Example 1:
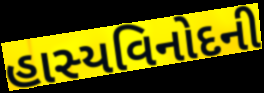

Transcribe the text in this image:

હાસ્યવિનોદની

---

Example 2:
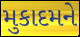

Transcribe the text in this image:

મુકાદમને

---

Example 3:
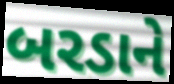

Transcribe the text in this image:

બરડાને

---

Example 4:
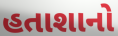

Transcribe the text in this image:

હતાશાનો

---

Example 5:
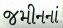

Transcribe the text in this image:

જમીનનાં